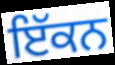
ਇੱਕਨ